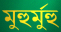
মুহুর্মুহু